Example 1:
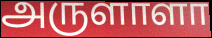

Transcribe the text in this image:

அருளாளா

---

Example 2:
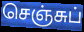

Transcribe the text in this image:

செஞ்சுப்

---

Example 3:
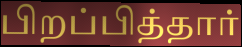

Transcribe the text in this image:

பிறப்பித்தார்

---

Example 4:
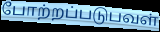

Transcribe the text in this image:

போற்றப்படுபவள்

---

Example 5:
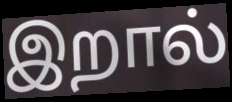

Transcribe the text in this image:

இறால்